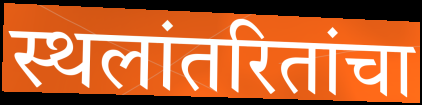
स्थलांतरितांचा